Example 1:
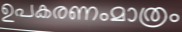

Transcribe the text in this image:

ഉപകരണംമാത്രം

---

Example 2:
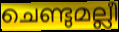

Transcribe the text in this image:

ചെണ്ടുമല്ലീ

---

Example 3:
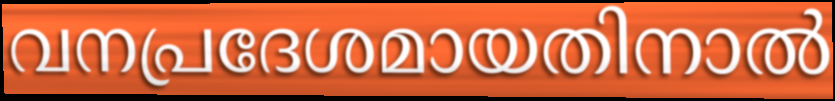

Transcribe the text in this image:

വനപ്രദേശമായതിനാൽ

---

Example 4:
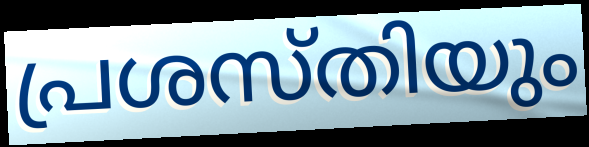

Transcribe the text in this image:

പ്രശസ്തിയും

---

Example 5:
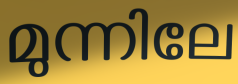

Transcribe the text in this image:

മുന്നിലേ